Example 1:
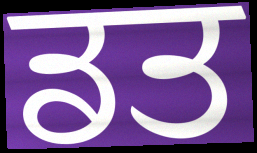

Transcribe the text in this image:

ਡਤ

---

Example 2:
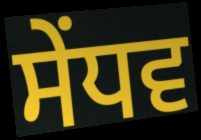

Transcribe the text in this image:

ਸੇਂਧਵ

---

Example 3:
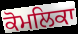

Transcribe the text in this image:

ਕੋਮਲਿਕਾ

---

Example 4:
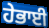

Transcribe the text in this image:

ਹੇਭਾਈ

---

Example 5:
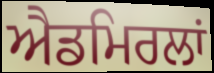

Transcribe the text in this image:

ਐਡਮਿਰਲਾਂ